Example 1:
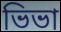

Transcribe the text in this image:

ভিভা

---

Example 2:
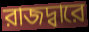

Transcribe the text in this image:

রাজদ্বারে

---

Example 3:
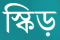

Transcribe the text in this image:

স্কিড়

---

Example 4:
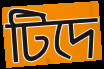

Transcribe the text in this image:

টিদে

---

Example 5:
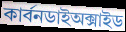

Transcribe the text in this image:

কার্বনডাইঅক্সাইড